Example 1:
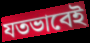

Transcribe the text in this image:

যতভাবেই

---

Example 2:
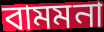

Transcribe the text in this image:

বামমনা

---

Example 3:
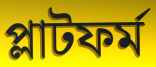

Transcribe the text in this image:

প্লাটফর্ম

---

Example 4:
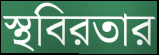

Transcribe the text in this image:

স্থবিরতার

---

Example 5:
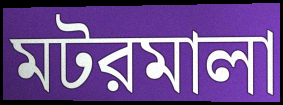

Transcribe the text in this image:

মটরমালা